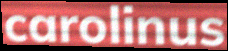
carolinus